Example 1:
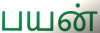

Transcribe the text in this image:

பயன்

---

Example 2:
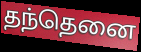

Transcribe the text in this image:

தந்தெனை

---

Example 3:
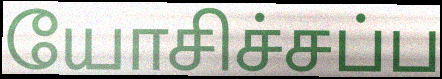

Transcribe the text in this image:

யோசிச்சப்ப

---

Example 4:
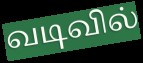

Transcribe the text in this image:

வடிவில்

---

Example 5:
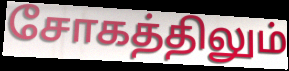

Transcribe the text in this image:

சோகத்திலும்